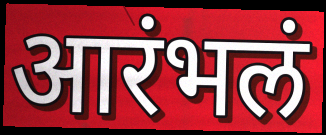
आरंभलं